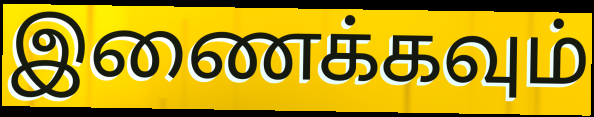
இணைக்கவும்